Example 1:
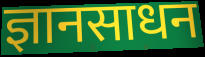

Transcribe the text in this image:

ज्ञानसाधन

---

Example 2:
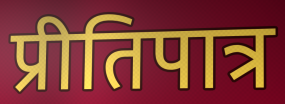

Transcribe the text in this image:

प्रीतिपात्र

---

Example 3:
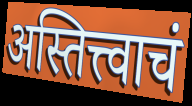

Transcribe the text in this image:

अस्तित्त्वाचं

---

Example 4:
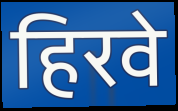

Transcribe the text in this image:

हिरवे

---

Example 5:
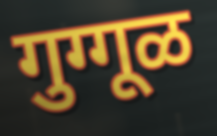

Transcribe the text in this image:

गुग्गूळ